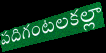
పదిగంటలకల్లా